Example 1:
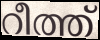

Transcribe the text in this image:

റീത്ത്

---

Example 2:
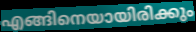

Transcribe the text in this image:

എങ്ങിനെയായിരിക്കും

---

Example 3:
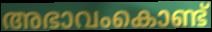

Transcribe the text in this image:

അഭാവംകൊണ്ട്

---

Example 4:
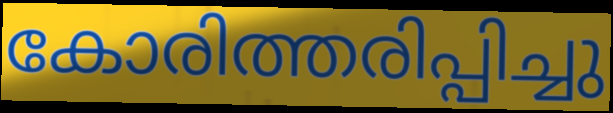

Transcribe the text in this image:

കോരിത്തരിപ്പിച്ചു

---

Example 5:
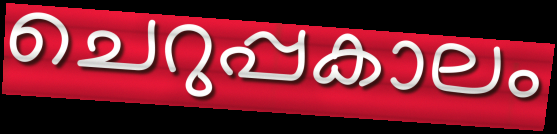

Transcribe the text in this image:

ചെറുപ്പകാലം